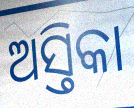
ଅସ୍ତିକା